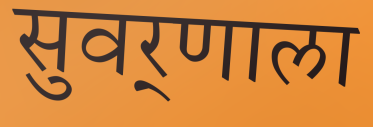
सुवर्णाला